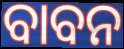
ବାବନ